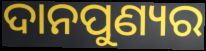
ଦାନପୁଣ୍ୟର